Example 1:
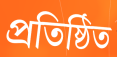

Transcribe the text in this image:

প্ৰতিষ্ঠিত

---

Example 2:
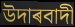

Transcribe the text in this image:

উদাৰবাদী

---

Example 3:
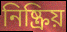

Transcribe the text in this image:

নিষ্ক্ৰিয়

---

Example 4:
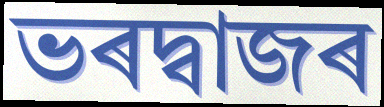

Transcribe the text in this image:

ভৰদ্বাজৰ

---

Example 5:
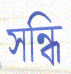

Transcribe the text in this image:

সন্ধি